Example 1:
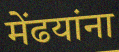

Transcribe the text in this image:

मेंढयांना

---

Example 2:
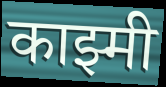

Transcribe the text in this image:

काझ्मी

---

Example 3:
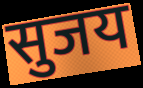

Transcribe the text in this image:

सुजय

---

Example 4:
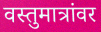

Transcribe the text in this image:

वस्तुमात्रांवर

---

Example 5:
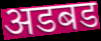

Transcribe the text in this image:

अडबड